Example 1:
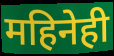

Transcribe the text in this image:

महिनेही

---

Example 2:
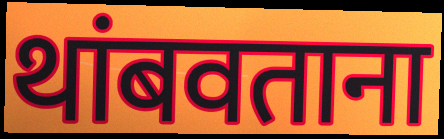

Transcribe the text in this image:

थांबवताना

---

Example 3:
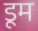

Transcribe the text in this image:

डूम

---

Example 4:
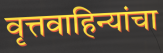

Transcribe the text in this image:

वृत्तवाहिन्यांचा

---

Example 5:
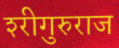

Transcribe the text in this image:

श्रीगुरुराज